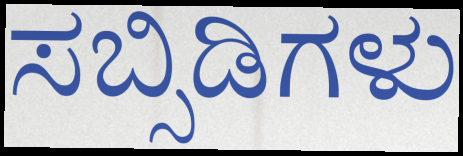
ಸಬ್ಸಿಡಿಗಳು